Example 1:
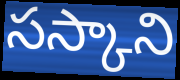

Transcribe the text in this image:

సస్కాని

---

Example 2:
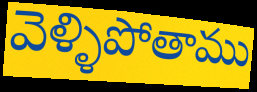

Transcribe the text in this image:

వెళ్ళిపోతాము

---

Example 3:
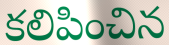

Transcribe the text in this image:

కలిపించిన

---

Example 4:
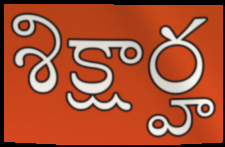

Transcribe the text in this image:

శిక్షార్హ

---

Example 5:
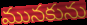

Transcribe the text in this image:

మునకును